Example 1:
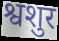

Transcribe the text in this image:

श्वशुर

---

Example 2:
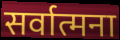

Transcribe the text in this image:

सर्वात्मना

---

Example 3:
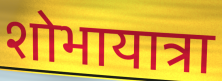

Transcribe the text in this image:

शोभायात्रा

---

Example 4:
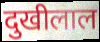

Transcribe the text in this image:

दुखीलाल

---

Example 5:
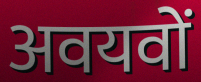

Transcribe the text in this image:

अवयवों